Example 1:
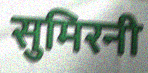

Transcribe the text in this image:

सुमिरनी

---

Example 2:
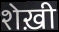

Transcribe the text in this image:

शेख़ी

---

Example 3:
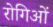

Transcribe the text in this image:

रोगिओं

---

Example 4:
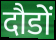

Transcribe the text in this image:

दौडों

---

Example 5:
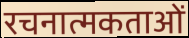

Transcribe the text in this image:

रचनात्मकताओं